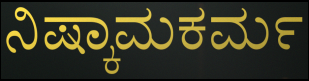
ನಿಷ್ಕಾಮಕರ್ಮ